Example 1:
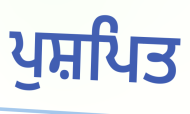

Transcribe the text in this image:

ਪੁਸ਼ਪਿਤ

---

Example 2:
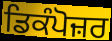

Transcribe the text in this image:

ਡਿਕੰਪੋਜ਼ਰ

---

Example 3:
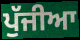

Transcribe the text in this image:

ਪੁੱਜੀਆ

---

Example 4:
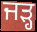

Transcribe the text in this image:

ਜੜ੍ਹ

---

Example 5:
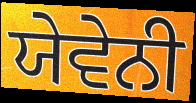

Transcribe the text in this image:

ਯੇਵੇਨੀ